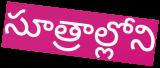
సూత్రాల్లోని